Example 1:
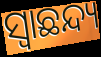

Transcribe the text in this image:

ସ୍ୱାଛନ୍ଦ୍ୟ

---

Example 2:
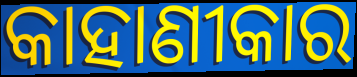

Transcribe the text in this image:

କାହାଣୀକାର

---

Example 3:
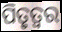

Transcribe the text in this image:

ପିତୃତ୍ୱର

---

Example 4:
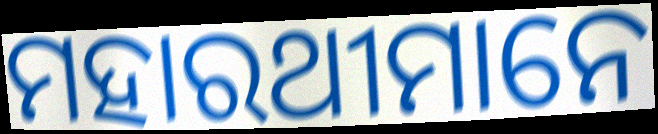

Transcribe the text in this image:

ମହାରଥୀମାନେ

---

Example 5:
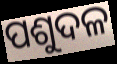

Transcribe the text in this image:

ପଶୁଦଳ